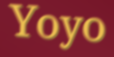
Yoyo